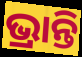
ଭ୍ରାନ୍ତି